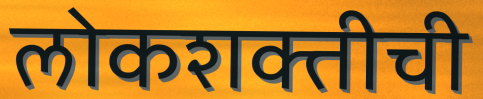
लोकशक्तीची